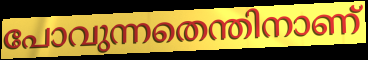
പോവുന്നതെന്തിനാണ്